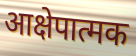
आक्षेपात्मक